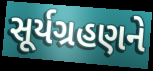
સૂર્યગ્રહણને